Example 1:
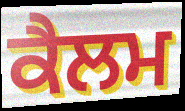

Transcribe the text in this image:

ਕੈਲਮ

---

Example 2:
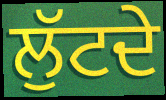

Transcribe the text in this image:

ਲੁੱਟਦੇ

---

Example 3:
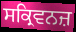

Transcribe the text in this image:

ਸਕ੍ਰਿਵਨਜ਼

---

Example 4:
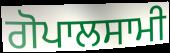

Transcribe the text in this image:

ਗੋਪਾਲਸਾਮੀ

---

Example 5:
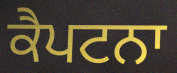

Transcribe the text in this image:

ਕੈਪਟਨਾ